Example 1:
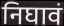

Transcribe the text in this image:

निघावं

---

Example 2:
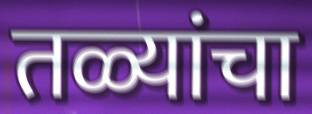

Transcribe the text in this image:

तळ्यांचा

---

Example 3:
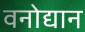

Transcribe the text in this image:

वनोद्यान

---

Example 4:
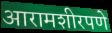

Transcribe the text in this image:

आरामशीरपणे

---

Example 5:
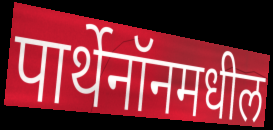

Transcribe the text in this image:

पार्थेनॉनमधील